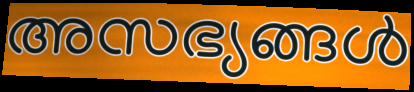
അസഭ്യങ്ങൾ